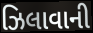
ઝિલાવાની